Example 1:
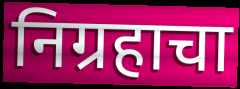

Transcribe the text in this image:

निग्रहाचा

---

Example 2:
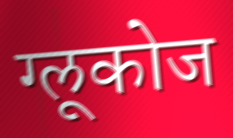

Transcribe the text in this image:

ग्लूकोज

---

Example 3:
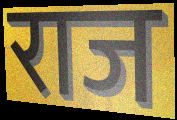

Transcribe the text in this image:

राज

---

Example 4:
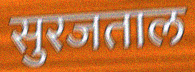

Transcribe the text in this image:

सुरजताल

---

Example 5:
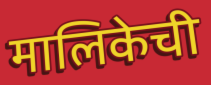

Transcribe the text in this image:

मालिकेची